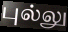
புல்லு